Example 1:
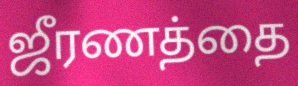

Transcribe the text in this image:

ஜீரணத்தை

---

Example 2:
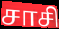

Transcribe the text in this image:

சாசி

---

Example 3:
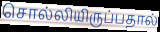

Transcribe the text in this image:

சொல்லியிருப்பதால்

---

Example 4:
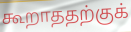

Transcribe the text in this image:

கூறாததற்குக்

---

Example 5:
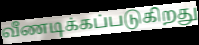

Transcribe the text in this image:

வீணடிக்கப்படுகிறது